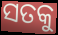
ସତକୁ